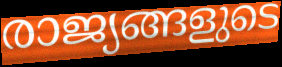
രാജ്യങ്ങളുടെ